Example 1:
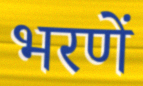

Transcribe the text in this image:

भरणें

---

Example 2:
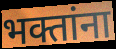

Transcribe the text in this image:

भक्तांना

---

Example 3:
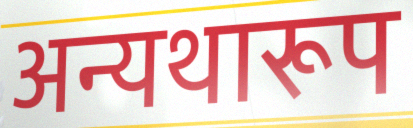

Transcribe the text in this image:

अन्यथारूप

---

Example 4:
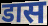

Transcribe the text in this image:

डास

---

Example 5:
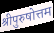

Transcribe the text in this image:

श्रीपुरुषोत्तम